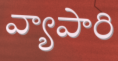
వ్యాపారి